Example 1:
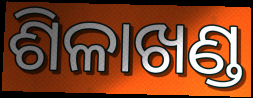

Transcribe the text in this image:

ଶିଳାଖଣ୍ଡ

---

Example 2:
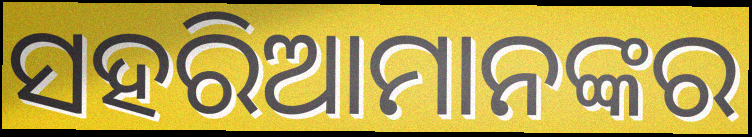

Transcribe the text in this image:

ସହରିଆମାନଙ୍କର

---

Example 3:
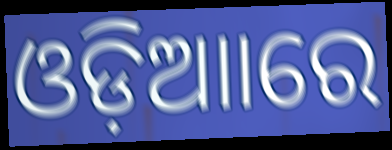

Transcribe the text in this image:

ଓଡ଼ିଆାରେ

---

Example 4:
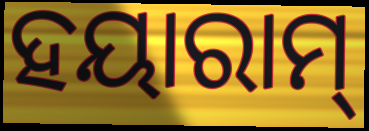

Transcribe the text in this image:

ହୟାରାମ୍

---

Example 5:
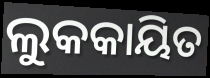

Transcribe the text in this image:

ଲୁକକାୟିତ